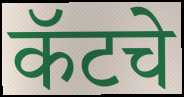
कॅटचे